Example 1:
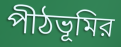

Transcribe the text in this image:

পীঠভূমির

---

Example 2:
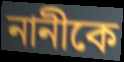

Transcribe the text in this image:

নানীকে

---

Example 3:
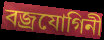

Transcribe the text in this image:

বজ্রযোগিনী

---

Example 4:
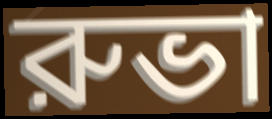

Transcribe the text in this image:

রুভা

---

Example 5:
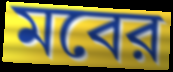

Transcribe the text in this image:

মবের